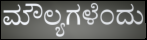
ಮೌಲ್ಯಗಳೆಂದು